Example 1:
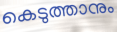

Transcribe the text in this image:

കെടുത്താനും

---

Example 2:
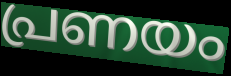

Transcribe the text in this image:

പ്രണയം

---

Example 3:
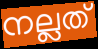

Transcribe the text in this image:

നല്ലത്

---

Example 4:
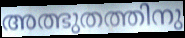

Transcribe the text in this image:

അത്ഭുതത്തിനു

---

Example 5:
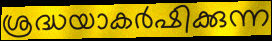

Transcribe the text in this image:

ശ്രദ്ധയാകർഷിക്കുന്ന